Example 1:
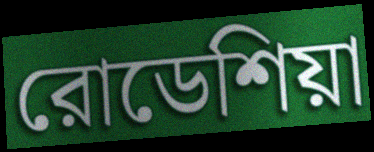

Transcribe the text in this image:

রোডেশিয়া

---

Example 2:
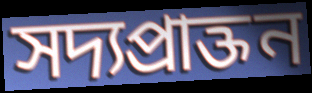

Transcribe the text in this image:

সদ্যপ্রাক্তন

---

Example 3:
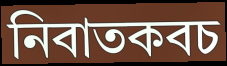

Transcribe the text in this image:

নিবাতকবচ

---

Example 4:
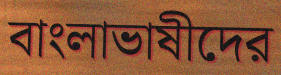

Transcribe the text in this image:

বাংলাভাষীদের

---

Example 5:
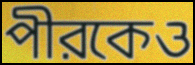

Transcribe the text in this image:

পীরকেও